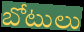
బోటులు